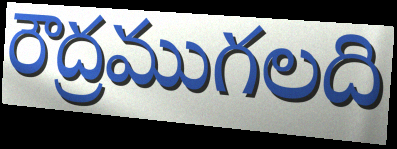
రౌద్రముగలది